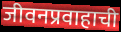
जीवनप्रवाहाची